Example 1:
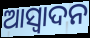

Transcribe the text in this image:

ଆସ୍ୱାଦନ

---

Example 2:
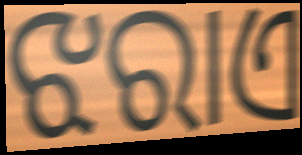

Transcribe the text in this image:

ଝରାଏ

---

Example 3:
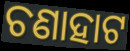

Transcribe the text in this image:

ଚଣାହାଟ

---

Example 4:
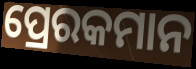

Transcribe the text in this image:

ପ୍ରେରକମାନ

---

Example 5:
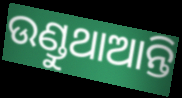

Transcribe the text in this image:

ଉଣ୍ଡୁଥାଆନ୍ତି